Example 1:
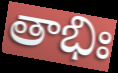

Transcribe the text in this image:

తాభిః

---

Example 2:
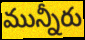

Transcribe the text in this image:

మున్నీరు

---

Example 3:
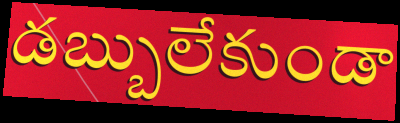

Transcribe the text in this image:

డబ్బులేకుండా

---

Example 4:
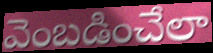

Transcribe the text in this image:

వెంబడించేలా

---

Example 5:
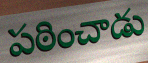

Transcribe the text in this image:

పఠించాడు